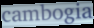
cambogia